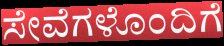
ಸೇವೆಗಳೊಂದಿಗೆ